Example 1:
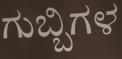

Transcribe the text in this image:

ಗುಬ್ಬಿಗಳ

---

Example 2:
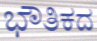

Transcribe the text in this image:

ಭೌತಿಕದ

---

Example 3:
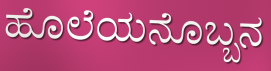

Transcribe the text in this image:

ಹೊಲೆಯನೊಬ್ಬನ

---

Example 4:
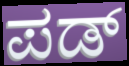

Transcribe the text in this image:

ಪಡ್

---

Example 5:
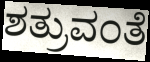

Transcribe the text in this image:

ಶತ್ರುವಂತೆ